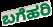
ಬಗೆಹರಿ